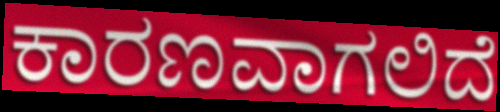
ಕಾರಣವಾಗಲಿದೆ